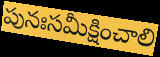
పునఃసమీక్షించాలి